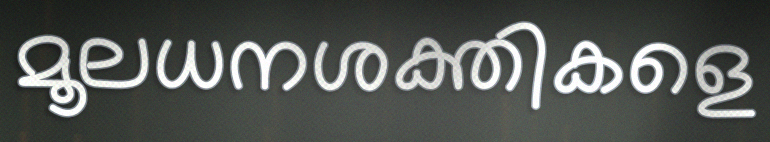
മൂലധനശക്തികളെ